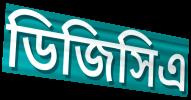
ডিজিসিএ